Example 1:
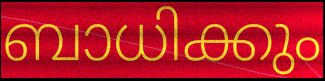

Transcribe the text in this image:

ബാധിക്കും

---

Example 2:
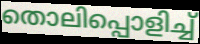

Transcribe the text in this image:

തൊലിപ്പൊളിച്ച്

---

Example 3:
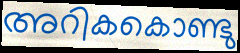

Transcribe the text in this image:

അറികകൊണ്ടു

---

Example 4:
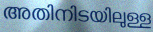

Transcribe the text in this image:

അതിനിടയിലുള്ള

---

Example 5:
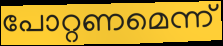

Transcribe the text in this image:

പോറ്റണമെന്ന്